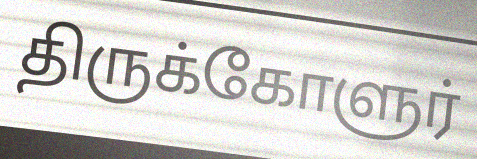
திருக்கோளுர்